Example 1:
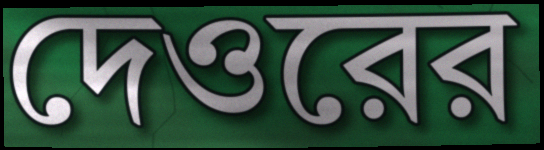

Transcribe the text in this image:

দেওরের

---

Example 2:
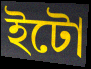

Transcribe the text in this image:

ইটো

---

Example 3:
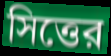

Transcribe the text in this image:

সিত্তের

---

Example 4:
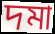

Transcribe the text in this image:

দমা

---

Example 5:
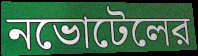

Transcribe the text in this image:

নভোটেলের